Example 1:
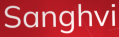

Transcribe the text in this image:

Sanghvi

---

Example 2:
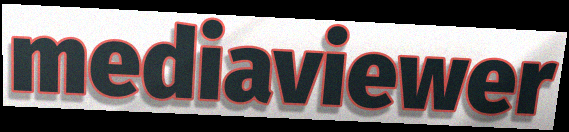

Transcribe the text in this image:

mediaviewer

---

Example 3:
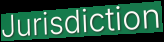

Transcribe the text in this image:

Jurisdiction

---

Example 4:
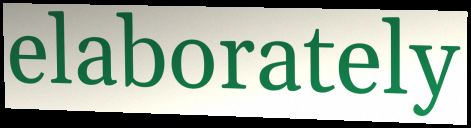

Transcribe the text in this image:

elaborately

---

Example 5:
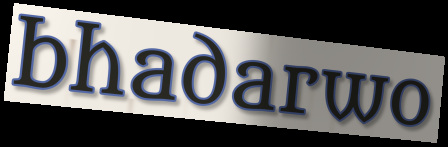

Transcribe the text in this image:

bhadarwo